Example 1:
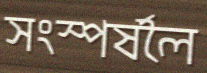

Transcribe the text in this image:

সংস্পৰ্ষলৈ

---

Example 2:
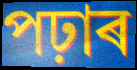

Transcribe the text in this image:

পঢ়াৰ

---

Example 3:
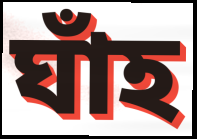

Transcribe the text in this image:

ঘাঁহ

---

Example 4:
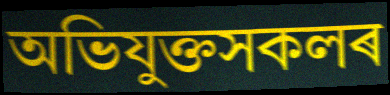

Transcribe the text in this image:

অভিযুক্তসকলৰ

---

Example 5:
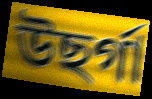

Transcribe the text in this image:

উছৰ্গা